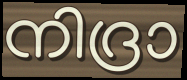
നിദ്രാ